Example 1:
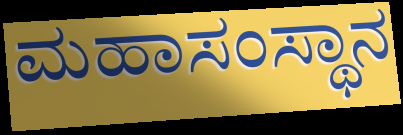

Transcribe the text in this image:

ಮಹಾಸಂಸ್ಥಾನ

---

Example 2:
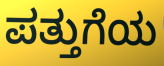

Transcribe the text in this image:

ಪತ್ತುಗೆಯ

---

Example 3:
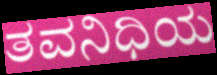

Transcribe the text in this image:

ತವನಿಧಿಯ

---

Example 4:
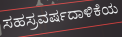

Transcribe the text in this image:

ಸಹಸ್ರವರ್ಷದಾಳಿಕೆಯ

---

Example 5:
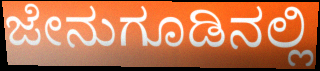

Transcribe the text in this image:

ಜೇನುಗೂಡಿನಲ್ಲಿ